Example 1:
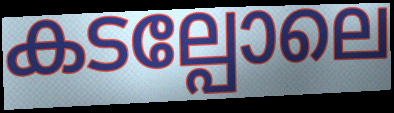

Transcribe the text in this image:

കടല്പോലെ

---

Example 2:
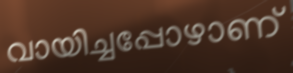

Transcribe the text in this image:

വായിച്ചപ്പോഴാണ്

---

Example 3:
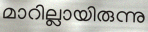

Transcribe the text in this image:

മാറില്ലായിരുന്നു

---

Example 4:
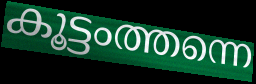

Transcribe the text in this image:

കൂട്ടംത്തന്നെ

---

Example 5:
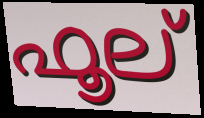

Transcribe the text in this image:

ഫൂല്